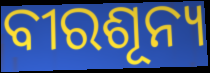
ବୀରଶୂନ୍ୟ